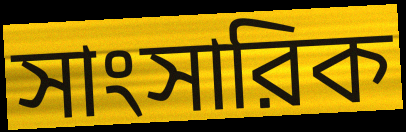
সাংসারিক